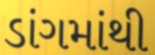
ડાંગમાંથી